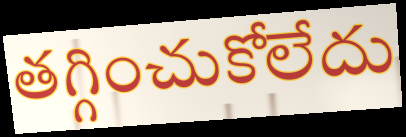
తగ్గించుకోలేదు